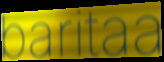
baritaa